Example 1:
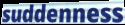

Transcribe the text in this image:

suddenness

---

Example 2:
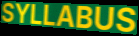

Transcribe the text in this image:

SYLLABUS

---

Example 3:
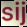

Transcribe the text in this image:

sij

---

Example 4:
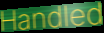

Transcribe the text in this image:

Handled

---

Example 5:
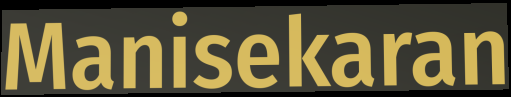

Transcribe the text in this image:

Manisekaran